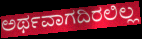
ಅರ್ಥವಾಗದಿರಲಿಲ್ಲ